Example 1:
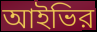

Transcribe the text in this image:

আইভির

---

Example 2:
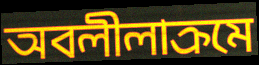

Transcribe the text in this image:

অবলীলাক্রমে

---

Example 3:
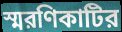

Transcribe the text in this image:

স্মরণিকাটির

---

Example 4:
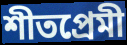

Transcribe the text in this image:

শীতপ্রেমী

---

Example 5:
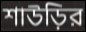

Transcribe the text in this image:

শাউড়ির